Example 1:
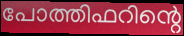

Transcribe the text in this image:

പോത്തിഫറിന്റെ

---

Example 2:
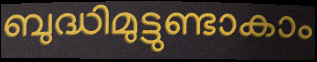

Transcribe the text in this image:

ബുദ്ധിമുട്ടുണ്ടാകാം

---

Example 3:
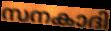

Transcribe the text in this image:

സനകാദി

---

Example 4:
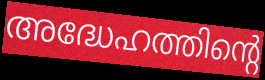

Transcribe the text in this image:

അദ്ധേഹത്തിന്റെ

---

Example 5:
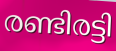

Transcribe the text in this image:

രണ്ടിരട്ടി